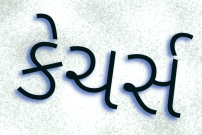
કેચર્સ